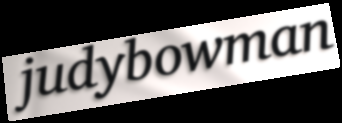
judybowman